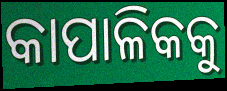
କାପାଳିକକୁ